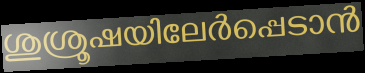
ശുശ്രൂഷയിലേർപ്പെടാൻ